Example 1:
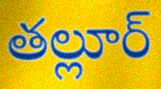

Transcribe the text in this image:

తల్లూర్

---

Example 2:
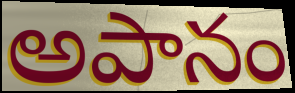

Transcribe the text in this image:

అపానం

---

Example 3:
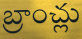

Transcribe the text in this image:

బ్రాంచ్లు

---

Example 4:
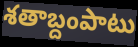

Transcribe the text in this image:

శతాబ్దంపాటు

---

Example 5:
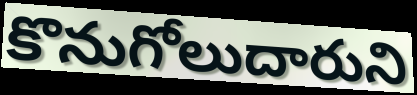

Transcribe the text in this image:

కొనుగోలుదారుని